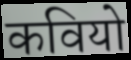
कवियो